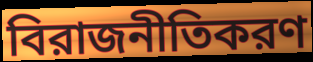
বিরাজনীতিকরণ